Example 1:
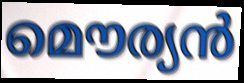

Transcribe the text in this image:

മൌര്യൻ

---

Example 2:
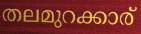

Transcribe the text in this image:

തലമുറക്കാര്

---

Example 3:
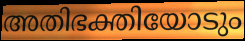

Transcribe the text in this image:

അതിഭക്തിയോടും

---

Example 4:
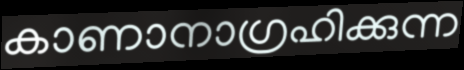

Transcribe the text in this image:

കാണാനാഗ്രഹിക്കുന്ന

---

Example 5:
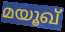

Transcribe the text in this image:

മയൂഖ്